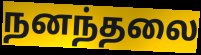
நனந்தலை